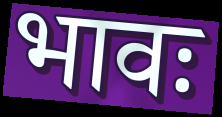
भावः